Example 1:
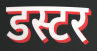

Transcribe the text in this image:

डस्टर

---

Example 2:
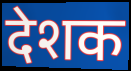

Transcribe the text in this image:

देशक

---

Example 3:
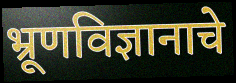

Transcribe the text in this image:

भ्रूणविज्ञानाचे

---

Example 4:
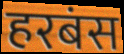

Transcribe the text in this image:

हरबंस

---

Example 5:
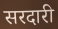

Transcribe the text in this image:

सरदारी